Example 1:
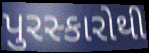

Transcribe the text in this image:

પુરસ્કારોથી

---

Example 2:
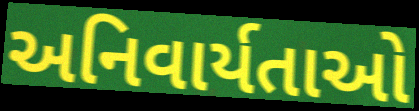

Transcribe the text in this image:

અનિવાર્યતાઓ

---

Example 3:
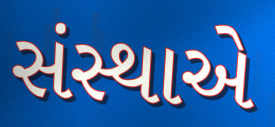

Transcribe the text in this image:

સંસ્થાએ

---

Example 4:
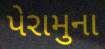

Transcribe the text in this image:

પેરામુના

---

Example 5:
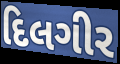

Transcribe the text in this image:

દિલગીર